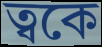
ত্বকে